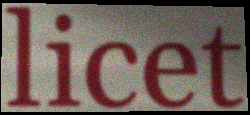
licet